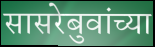
सासरेबुवांच्या